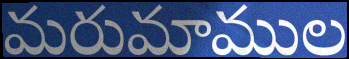
మరుమాముల